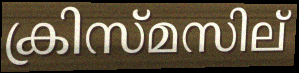
ക്രിസ്മസില്